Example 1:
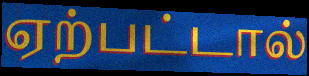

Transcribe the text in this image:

ஏற்பட்டால்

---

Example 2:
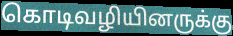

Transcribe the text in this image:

கொடிவழியினருக்கு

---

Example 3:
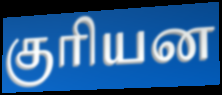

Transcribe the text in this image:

குரியன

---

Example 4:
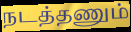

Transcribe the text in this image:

நடத்தணும்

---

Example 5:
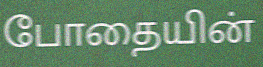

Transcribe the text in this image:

போதையின்